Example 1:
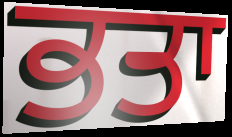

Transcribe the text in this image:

ਭਤਾ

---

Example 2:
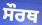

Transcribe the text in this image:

ਸੌਰਥ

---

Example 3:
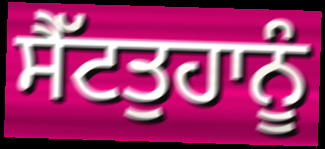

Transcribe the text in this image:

ਸੈੱਟਤੁਹਾਨੂੰ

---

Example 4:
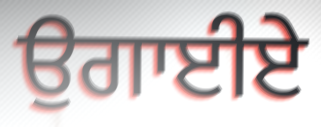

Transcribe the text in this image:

ਉਗਾਈਏ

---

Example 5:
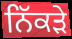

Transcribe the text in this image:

ਨਿੱਕੜੇ